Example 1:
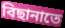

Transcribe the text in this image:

বিছানাতে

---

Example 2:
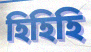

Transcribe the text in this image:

হিহিহি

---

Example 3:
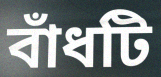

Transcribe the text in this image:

বাঁধটি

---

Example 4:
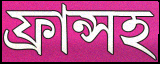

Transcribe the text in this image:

ফ্রান্সহ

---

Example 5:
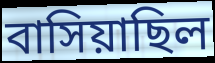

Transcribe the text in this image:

বাসিয়াছিল